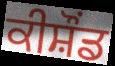
ਕੀਸ਼ੌਂਡ